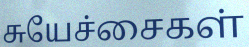
சுயேச்சைகள்